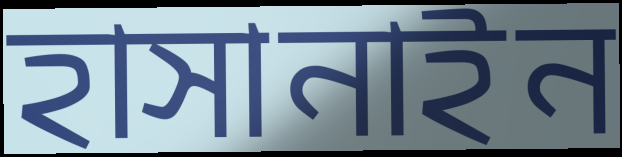
হাসানাইন